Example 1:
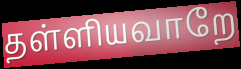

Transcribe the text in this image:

தள்ளியவாறே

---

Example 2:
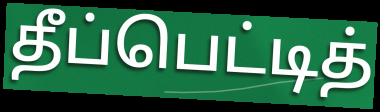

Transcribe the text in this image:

தீப்பெட்டித்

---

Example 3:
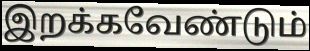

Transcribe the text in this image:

இறக்கவேண்டும்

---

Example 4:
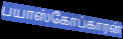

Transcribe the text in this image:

பயாஸ்கோப்காரன்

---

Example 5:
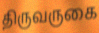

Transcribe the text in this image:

திருவருகை